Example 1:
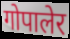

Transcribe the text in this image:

गोपालेर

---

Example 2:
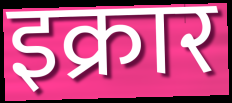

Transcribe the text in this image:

इक्रार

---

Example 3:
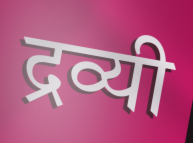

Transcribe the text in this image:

द्रव्यी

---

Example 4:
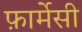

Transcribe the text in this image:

फ़ार्मेसी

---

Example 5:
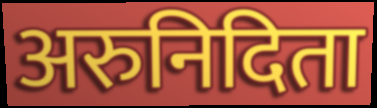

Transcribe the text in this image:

अरुनिदिता